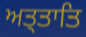
ਅਤ੍ਤਾਤਿ